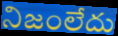
నిజంలేదు